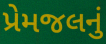
પ્રેમજલનું